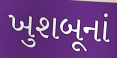
ખુશબૂનાં